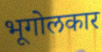
भूगोलकार